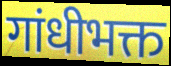
गांधीभक्त